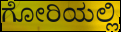
ಗೋರಿಯಲ್ಲಿ